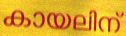
കായലിന്